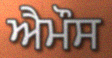
ਐਮੌਸ